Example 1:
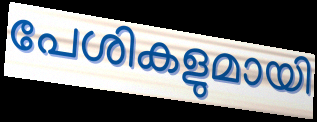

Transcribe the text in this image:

പേശികളുമായി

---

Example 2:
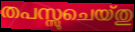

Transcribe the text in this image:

തപസ്സുചെയ്തു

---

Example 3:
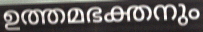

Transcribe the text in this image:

ഉത്തമഭക്തനും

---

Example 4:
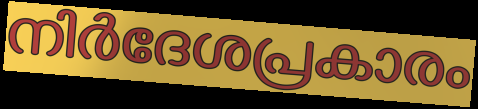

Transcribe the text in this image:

നിർദേശപ്രകാരം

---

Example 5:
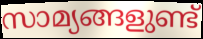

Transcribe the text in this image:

സാമ്യങ്ങളുണ്ട്